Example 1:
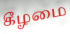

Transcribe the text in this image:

கீழமை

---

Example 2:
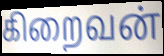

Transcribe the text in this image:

கிறைவன்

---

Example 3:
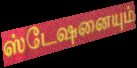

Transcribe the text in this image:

ஸ்டேஷனையும்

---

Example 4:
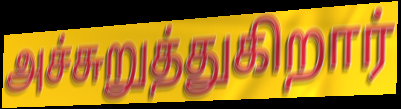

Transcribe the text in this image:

அச்சுறுத்துகிறார்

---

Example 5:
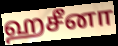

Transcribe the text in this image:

ஹசீனா